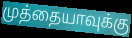
முத்தையாவுக்கு